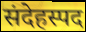
संदेहस्पद